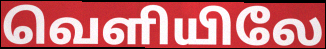
வெளியிலே